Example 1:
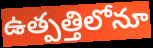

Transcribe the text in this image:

ఉత్పత్తిలోనూ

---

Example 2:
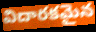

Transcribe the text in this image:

విదారకమైన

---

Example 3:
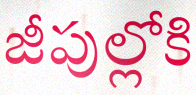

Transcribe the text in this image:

జీపుల్లోకి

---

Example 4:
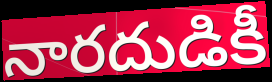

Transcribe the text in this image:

నారదుడికీ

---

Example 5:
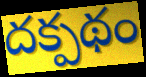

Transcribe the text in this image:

దక్పథం